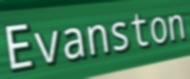
Evanston